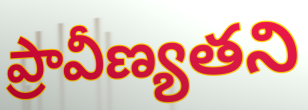
ప్రావీణ్యతని